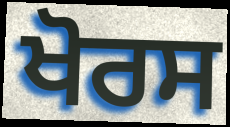
ਖੋਰਸ